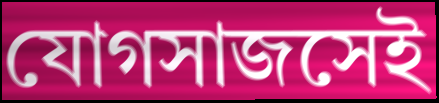
যোগসাজসেই